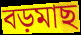
বড়মাছ